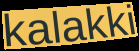
kalakki